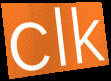
clk